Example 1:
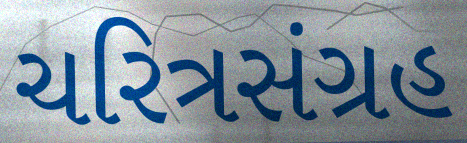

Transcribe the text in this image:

ચરિત્રસંગ્રહ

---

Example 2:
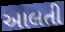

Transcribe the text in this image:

આલતી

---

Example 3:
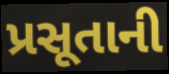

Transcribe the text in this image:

પ્રસૂતાની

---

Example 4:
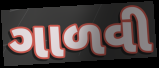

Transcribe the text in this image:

ગાળવી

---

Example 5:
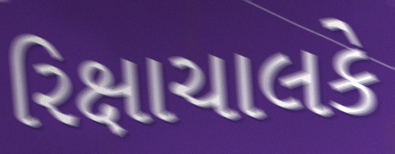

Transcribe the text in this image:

રિક્ષાચાલકે